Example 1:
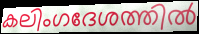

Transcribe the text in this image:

കലിംഗദേശത്തിൽ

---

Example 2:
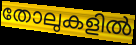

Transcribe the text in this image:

തോലുകളിൽ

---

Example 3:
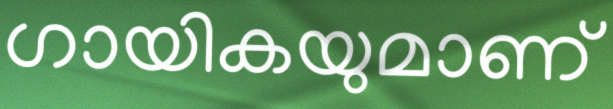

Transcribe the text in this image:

ഗായികയുമാണ്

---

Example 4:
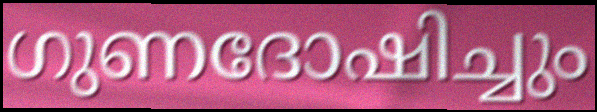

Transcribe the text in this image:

ഗുണദോഷിച്ചും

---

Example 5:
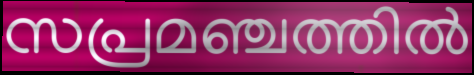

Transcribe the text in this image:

സപ്രമഞ്ചത്തിൽ